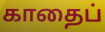
காதைப்